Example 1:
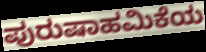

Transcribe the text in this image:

ಪುರುಷಾಹಮಿಕೆಯ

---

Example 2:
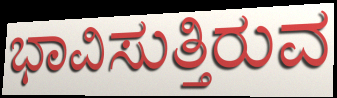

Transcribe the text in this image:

ಭಾವಿಸುತ್ತಿರುವ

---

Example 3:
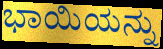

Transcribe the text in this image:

ಭಾಯಿಯನ್ನು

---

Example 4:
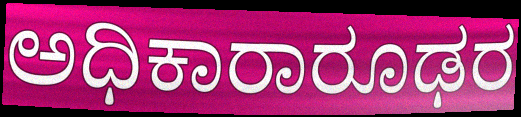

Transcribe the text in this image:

ಅಧಿಕಾರಾರೂಢರ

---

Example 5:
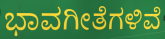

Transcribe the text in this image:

ಭಾವಗೀತೆಗಳಿವೆ